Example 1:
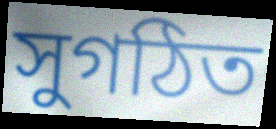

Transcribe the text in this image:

সুগঠিত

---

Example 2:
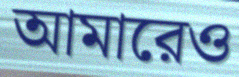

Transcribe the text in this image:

আমারেও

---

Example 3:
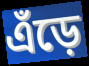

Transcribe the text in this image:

এঁড়ে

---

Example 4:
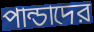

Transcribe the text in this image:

পান্ডাদের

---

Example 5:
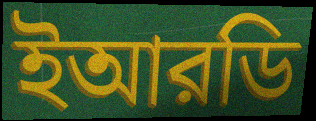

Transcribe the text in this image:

ইআরডি